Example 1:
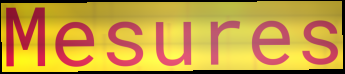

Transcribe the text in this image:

Mesures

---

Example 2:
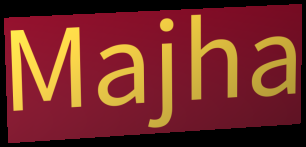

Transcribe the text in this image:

Majha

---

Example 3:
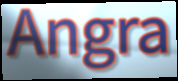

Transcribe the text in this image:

Angra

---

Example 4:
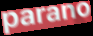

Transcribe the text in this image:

parano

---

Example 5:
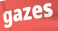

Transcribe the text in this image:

gazes